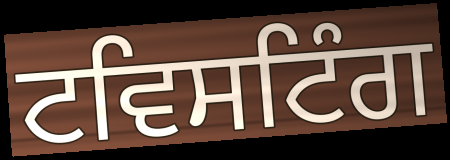
ਟਵਿਸਟਿੰਗ